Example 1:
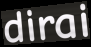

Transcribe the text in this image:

dirai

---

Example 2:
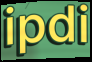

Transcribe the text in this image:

ipdi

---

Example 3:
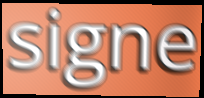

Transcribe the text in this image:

signe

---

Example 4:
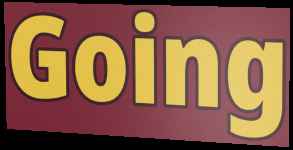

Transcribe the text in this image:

Going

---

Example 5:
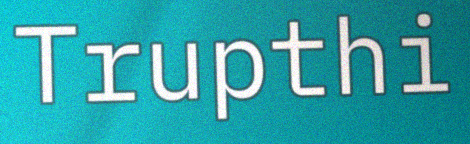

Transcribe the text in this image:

Trupthi